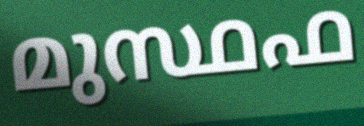
മുസ്ഥഫ